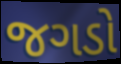
જગડો